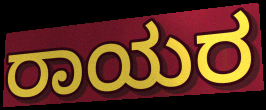
ರಾಯರ